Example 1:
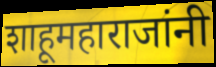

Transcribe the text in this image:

शाहूमहाराजांनी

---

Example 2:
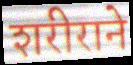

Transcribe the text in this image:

शरीराने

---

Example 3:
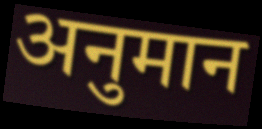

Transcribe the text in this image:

अनुमान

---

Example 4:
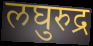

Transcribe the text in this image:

लघुरुद्र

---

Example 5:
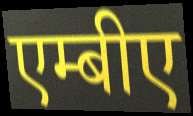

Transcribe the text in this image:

एम्बीए